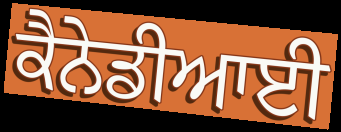
ਕੈਨੇਡੀਆਈ